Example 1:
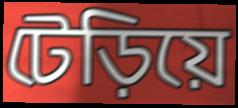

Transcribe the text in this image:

টেড়িয়ে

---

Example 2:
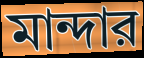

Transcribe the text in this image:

মান্দার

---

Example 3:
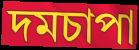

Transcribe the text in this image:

দমচাপা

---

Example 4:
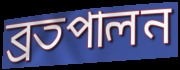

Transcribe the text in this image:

ব্রতপালন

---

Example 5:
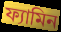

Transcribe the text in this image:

ফ্যামিন